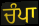
ਚੰਪਾ